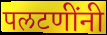
पलटणींनी